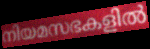
നിയമസഭകളിൽ